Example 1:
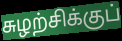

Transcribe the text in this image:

சுழற்சிக்குப்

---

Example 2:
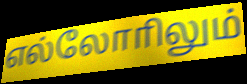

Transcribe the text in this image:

எல்லோரிலும்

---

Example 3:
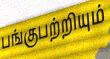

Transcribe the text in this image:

பங்குபற்றியும்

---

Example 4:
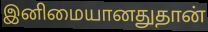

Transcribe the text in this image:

இனிமையானதுதான்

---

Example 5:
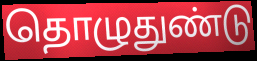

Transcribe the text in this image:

தொழுதுண்டு